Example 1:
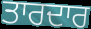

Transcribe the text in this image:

ਤਾਰਦਾਰ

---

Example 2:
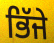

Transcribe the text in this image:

ਭਿੱਜੇ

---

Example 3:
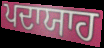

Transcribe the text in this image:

ਪਦਾਯਾਹ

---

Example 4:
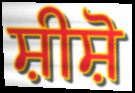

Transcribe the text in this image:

ਸ਼ੀਸ਼ੋ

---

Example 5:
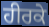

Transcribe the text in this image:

ਹੀਰਕੇ